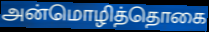
அன்மொழித்தொகை